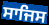
ਸਾਜਿਸ